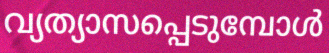
വ്യത്യാസപ്പെടുമ്പോൾ